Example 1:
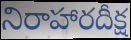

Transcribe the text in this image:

నిరాహారదీక్ష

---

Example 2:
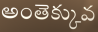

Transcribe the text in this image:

అంతెక్కువ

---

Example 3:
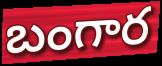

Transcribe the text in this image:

బంగార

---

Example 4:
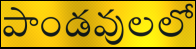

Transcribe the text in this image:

పాండవులలో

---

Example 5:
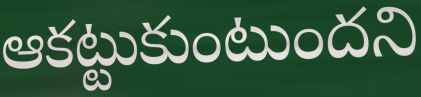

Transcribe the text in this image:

ఆకట్టుకుంటుందని